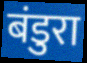
बंडुरा